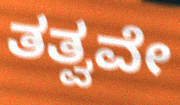
ತತ್ವವೇ